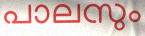
പാലസും